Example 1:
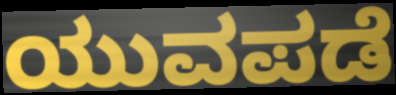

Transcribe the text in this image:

ಯುವಪಡೆ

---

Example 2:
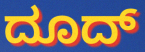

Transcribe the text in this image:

ದೂದ್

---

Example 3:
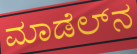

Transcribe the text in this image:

ಮಾಡೆಲ್‌ನ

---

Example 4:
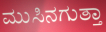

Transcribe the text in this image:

ಮುಸಿನಗುತ್ತಾ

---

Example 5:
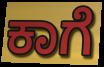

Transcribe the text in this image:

ಕಾಗೆ